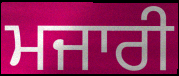
ਮਜਾਰੀ